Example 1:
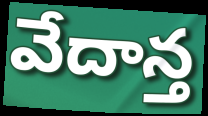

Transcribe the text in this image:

వేదాన్త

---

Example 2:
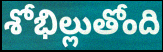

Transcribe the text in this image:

శోభిల్లుతోంది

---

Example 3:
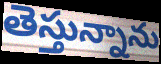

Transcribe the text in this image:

తెస్తున్నాను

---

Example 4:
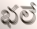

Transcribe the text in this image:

భలే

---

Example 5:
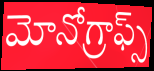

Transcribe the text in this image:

మోనోగ్రాఫ్స్